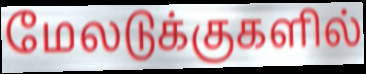
மேலடுக்குகளில்